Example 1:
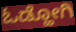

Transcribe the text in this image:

ಓಡ್ಹೋಗಿ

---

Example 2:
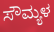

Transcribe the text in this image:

ಸೌಮ್ಯಳ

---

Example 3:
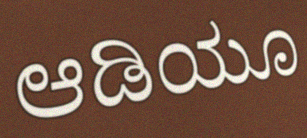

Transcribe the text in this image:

ಆಡಿಯೂ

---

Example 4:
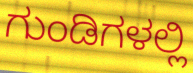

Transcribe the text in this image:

ಗುಂಡಿಗಳಲ್ಲಿ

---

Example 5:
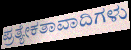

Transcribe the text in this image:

ಪ್ರತ್ಯೇಕತಾವಾದಿಗಳು